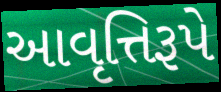
આવૃત્તિરૂપે